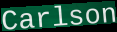
Carlson